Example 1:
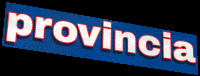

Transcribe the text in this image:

provincia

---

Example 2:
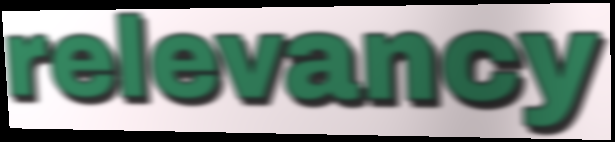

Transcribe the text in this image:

relevancy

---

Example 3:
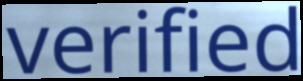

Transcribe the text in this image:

verified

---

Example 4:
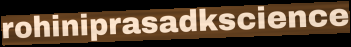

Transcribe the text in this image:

rohiniprasadkscience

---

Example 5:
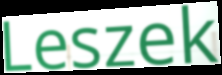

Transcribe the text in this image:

Leszek